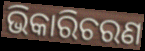
ଭିକାରିଚରଣ